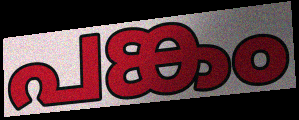
പങ്കം